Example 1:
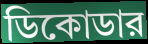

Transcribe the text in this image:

ডিকোডার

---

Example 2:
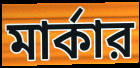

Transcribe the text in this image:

মার্কার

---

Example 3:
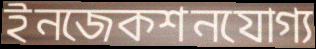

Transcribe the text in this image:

ইনজেকশনযোগ্য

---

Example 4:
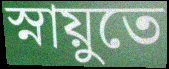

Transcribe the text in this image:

স্নায়ুতে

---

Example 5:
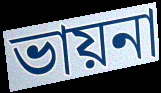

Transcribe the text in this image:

ভায়না